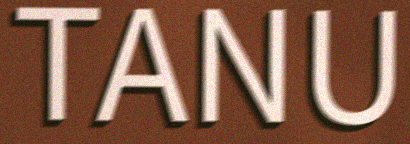
TANU